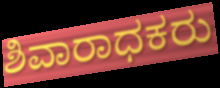
ಶಿವಾರಾಧಕರು